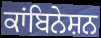
ਕਾਂਬਿਨੇਸ਼ਨ